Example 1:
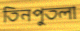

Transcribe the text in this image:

তিনপুতলা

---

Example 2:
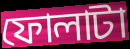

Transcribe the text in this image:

ফোলাটা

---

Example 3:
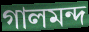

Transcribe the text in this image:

গালমন্দ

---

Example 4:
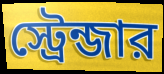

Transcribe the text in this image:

স্ট্রেন্জার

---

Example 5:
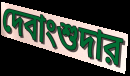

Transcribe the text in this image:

দেবাংশুদার